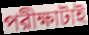
পরীক্ষাটাই